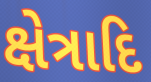
ક્ષેત્રાદિ